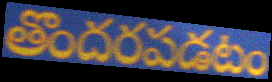
తొందరపడటం